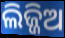
ଲିଜ୍ଜିଅ